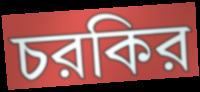
চরকির